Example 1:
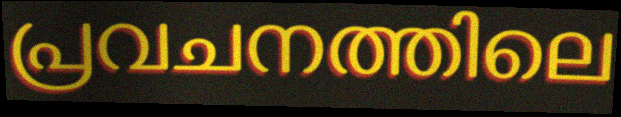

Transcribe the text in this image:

പ്രവചനത്തിലെ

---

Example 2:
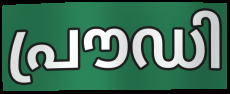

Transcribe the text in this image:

പ്രൗഡി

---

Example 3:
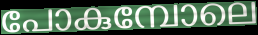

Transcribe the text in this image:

പോകുമ്പോലെ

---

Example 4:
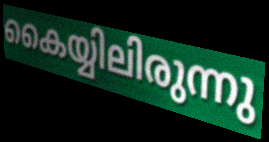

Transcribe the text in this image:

കൈയ്യിലിരുന്നു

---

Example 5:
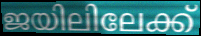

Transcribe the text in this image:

ജയിലിലേക്ക്